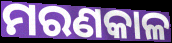
ମରଣକାଳ